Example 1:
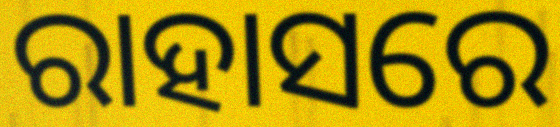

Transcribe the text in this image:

ରାହାସରେ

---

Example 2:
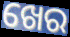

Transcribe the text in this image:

ଖେର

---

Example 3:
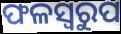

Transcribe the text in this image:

ଫଳସ୍ୱରୁପ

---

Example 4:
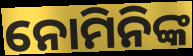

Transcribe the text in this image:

ନୋମିନିଙ୍କ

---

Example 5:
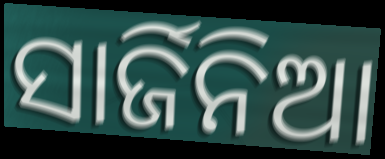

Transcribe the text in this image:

ସାର୍ଜିନିଆ